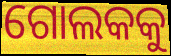
ଗୋଲକକୁ